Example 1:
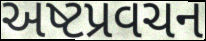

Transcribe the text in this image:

અષ્ટપ્રવચન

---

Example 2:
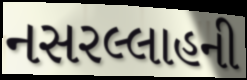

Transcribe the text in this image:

નસરલ્લાહની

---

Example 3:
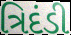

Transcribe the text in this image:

ત્રિદંડી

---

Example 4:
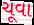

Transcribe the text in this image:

ચૂવા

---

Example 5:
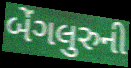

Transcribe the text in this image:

બેંગલુરુની